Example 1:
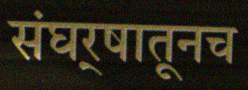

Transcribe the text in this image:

संघर्षातूनच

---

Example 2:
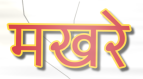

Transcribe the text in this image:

मखरे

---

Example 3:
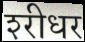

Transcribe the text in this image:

श्रीधर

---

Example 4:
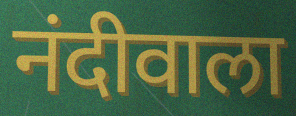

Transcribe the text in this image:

नंदीवाला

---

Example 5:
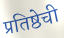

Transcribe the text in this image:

प्रतिष्ठेची